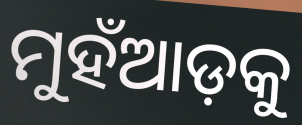
ମୁହଁଆଡ଼କୁ